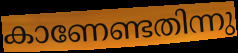
കാണേണ്ടതിന്നു